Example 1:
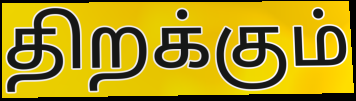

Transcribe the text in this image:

திறக்கும்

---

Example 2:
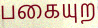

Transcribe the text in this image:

பகையுற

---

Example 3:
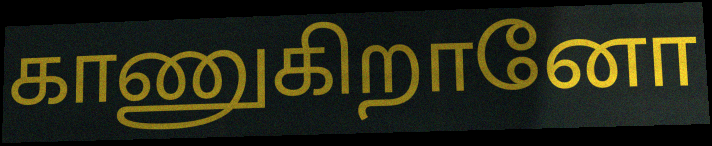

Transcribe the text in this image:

காணுகிறானோ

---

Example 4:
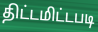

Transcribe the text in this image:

திட்டமிட்டபடி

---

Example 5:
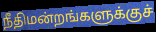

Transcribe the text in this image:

நீதிமன்றங்களுக்குச்